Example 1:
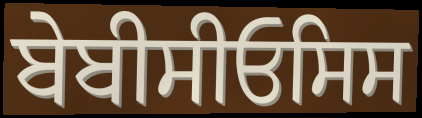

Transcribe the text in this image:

ਬੇਬੀਸੀਓਸਿਸ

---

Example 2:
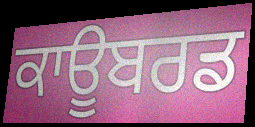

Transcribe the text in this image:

ਕਾਊਬਰਡ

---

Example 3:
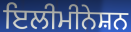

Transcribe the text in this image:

ਇਲੀਮੀਨੇਸ਼ਨ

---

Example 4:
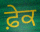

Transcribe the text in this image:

ਫ਼ੇਕ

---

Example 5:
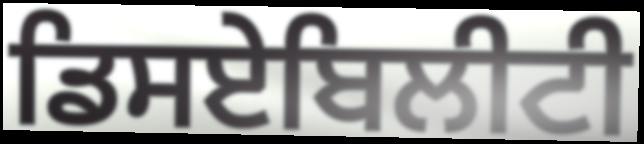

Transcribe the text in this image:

ਡਿਸਏਬਿਲੀਟੀ